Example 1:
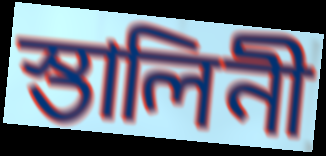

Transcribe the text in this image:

স্তালিনী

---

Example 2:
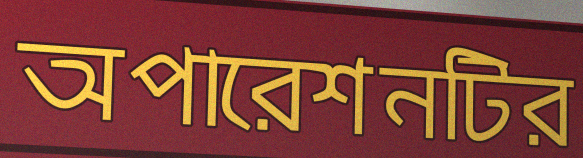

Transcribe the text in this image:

অপারেশনটির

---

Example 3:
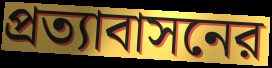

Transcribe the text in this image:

প্রত্যাবাসনের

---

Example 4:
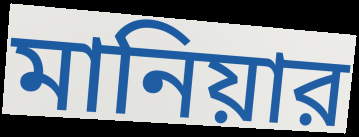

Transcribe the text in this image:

মানিয়ার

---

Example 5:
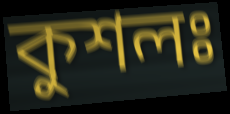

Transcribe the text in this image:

কুশলঃ